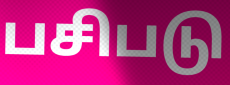
பசிபடு